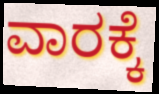
ವಾರಕ್ಕೆ